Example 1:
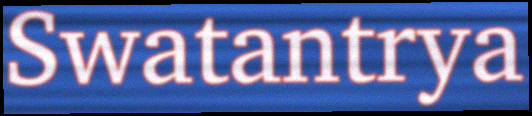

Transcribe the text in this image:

Swatantrya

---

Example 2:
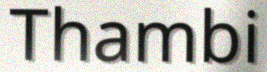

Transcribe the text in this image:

Thambi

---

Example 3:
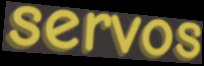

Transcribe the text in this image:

servos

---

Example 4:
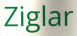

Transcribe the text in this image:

Ziglar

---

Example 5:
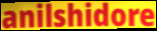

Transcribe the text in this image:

anilshidore